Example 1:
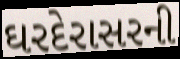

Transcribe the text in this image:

ઘરદેરાસરની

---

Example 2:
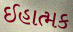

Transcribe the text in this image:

ઈહાત્મક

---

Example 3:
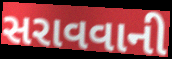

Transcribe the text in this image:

સરાવવાની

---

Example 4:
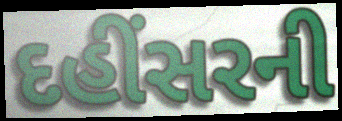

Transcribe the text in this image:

દહીંસરની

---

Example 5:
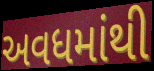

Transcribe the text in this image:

અવધમાંથી